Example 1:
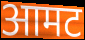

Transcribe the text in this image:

आमट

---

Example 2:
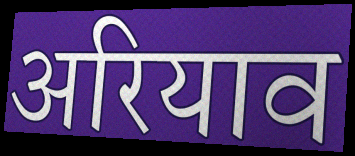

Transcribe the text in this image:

अरियाव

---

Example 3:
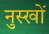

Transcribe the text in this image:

नुस्खों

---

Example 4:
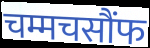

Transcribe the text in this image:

चम्मचसौंफ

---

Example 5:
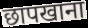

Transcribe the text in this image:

छापखाना